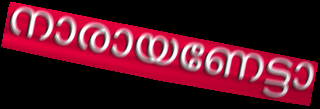
നാരായണേട്ടാ